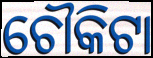
ଚୌକିଟା